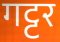
गट्टर